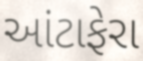
આંટાફેરા